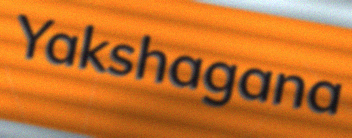
Yakshagana